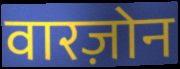
वारज़ोन